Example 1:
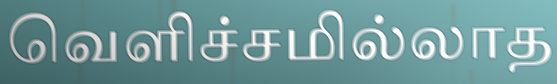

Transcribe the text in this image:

வெளிச்சமில்லாத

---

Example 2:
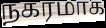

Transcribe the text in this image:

நகரமாக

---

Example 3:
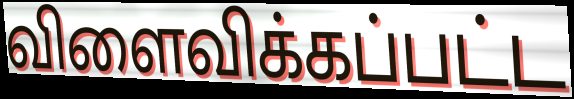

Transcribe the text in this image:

விளைவிக்கப்பட்ட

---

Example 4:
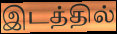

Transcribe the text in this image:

இடத்தில்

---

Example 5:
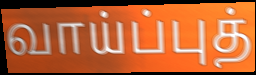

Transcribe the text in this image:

வாய்ப்புத்